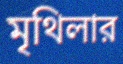
মৃথিলার